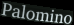
Palomino